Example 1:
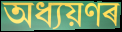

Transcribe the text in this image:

অধ্যয়ণৰ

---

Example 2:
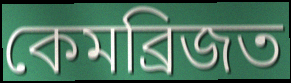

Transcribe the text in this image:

কেমব্ৰিজত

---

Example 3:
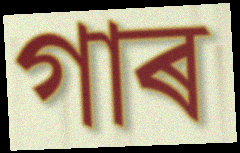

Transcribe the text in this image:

গাৰ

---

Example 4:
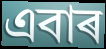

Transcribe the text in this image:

এবাৰ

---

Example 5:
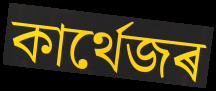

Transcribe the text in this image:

কাৰ্থেজৰ